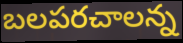
బలపరచాలన్న